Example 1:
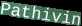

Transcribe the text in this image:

Pathivin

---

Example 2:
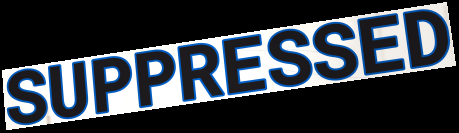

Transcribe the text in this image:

SUPPRESSED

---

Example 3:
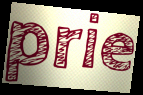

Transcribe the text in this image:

prie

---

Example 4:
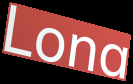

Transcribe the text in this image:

Lona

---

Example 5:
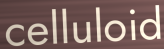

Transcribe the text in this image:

celluloid